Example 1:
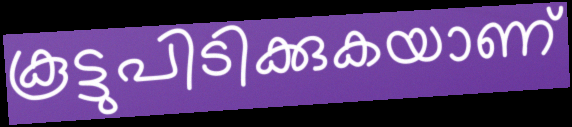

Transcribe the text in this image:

കൂട്ടുപിടിക്കുകയാണ്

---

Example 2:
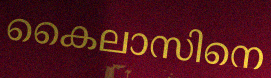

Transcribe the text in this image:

കൈലാസിനെ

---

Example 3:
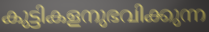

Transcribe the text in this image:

കുട്ടികളനുഭവിക്കുന്ന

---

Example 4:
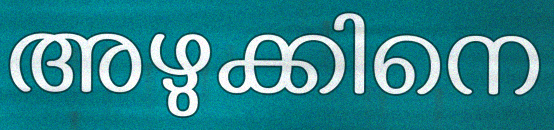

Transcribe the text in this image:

അഴുക്കിനെ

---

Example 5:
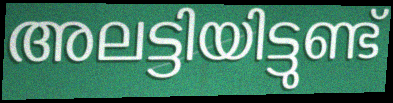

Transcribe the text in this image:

അലട്ടിയിട്ടുണ്ട്